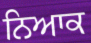
ਨਿਆਕ